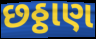
છઠ્ઠાણ